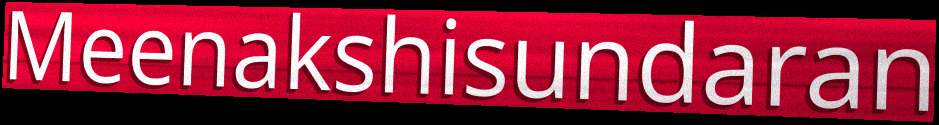
Meenakshisundaran